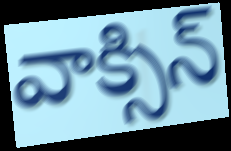
వాక్సిన్